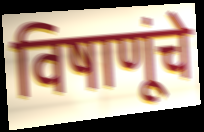
विषाणूंचे